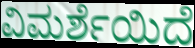
ವಿಮರ್ಶೆಯಿದೆ